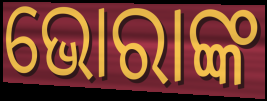
ଭୋରାଙ୍କ